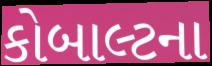
કોબાલ્ટના